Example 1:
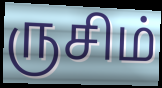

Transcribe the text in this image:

ருசிம்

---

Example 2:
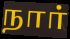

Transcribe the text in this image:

நார்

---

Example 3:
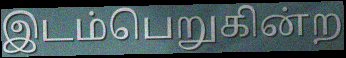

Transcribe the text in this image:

இடம்பெறுகின்ற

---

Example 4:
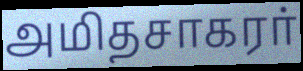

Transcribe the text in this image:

அமிதசாகரர்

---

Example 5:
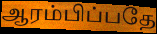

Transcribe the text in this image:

ஆரம்பிப்பதே